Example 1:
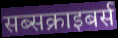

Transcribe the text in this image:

सब्सक्राइबर्स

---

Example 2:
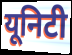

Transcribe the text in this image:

यूनिटी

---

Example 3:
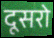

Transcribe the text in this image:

दूसरो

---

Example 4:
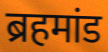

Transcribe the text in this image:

ब्रहमांड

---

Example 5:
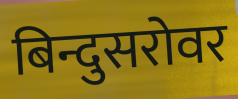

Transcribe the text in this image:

बिन्दुसरोवर